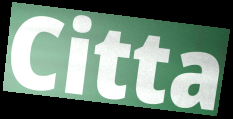
Citta